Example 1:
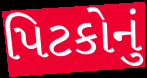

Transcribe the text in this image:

પિટકોનું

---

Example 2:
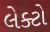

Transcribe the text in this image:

લેક્ટો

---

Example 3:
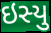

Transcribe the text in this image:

ઇસ્યુ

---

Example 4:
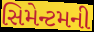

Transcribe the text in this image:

સિમેન્ટમની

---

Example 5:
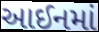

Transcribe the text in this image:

આઈનમાં